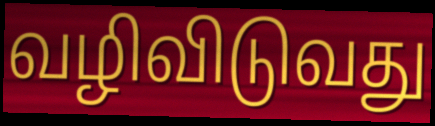
வழிவிடுவது